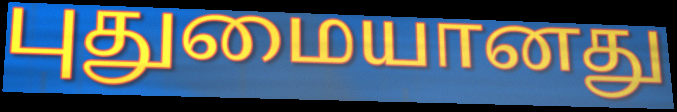
புதுமையானது